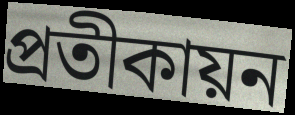
প্রতীকায়ন